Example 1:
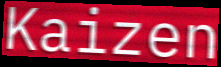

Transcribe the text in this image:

Kaizen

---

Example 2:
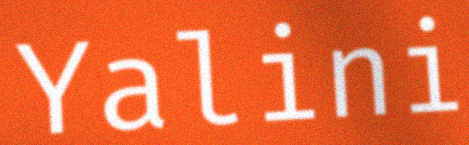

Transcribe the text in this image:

Yalini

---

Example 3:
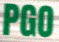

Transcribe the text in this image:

PGO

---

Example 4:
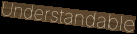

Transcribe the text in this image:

Understandable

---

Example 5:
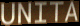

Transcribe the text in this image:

UNITA